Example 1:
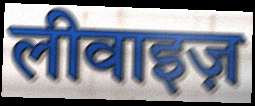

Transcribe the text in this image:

लीवाइज़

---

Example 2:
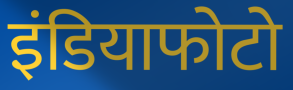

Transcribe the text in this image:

इंडियाफोटो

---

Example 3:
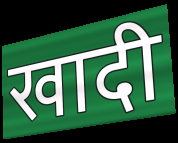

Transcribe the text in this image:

खादी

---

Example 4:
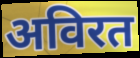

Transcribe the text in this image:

अविरत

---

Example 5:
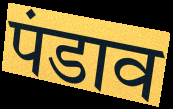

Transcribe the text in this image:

पंडाव